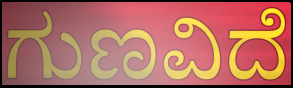
ಗುಣವಿದೆ